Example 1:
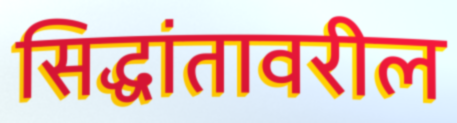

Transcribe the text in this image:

सिद्धांतावरील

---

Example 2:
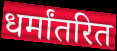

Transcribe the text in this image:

धर्मांतरित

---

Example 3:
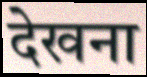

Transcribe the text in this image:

देखना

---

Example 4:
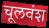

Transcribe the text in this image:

चूलवंश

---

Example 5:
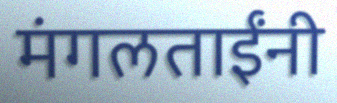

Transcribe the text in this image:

मंगलताईंनी